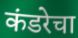
कंडरेचा